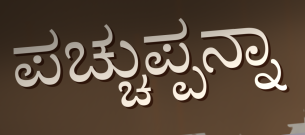
ಪಚ್ಚುಪ್ಪನ್ನಾ